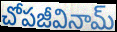
చోపజీవినామ్